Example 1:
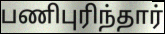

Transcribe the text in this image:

பணிபுரிந்தார்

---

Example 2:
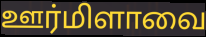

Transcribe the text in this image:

ஊர்மிளாவை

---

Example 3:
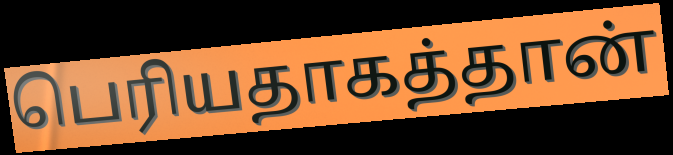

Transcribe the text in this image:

பெரியதாகத்தான்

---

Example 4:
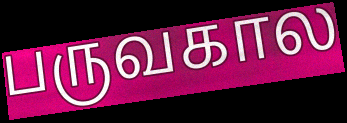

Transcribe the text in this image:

பருவகால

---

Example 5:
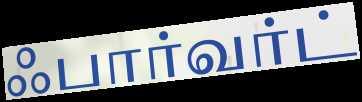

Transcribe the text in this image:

ஃபார்வர்ட்